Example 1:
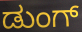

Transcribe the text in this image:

ಡುಂಗ್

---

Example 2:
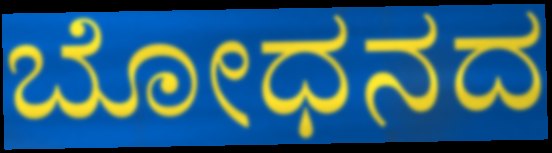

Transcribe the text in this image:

ಬೋಧನದ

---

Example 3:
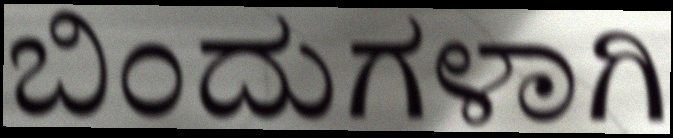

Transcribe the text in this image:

ಬಿಂದುಗಳಾಗಿ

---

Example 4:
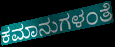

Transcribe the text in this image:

ಕಮಾನುಗಳಂತೆ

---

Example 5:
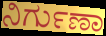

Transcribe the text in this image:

ನಿರ್ಗುಣಾ